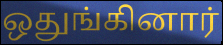
ஒதுங்கினார்